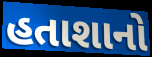
હતાશાનો